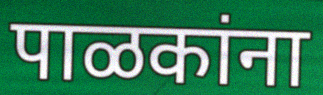
पाळकांना